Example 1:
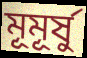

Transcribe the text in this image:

মূমূর্ষু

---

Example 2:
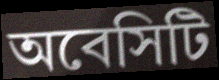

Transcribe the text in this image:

অবেসিটি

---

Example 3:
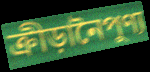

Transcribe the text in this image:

ক্রীড়ানৈপুণ্য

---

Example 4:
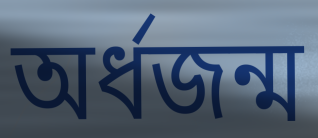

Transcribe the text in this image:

অর্ধজন্ম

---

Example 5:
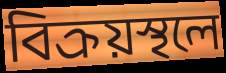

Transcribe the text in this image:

বিক্রয়স্থলে